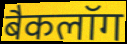
बैकलॉग